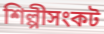
শিল্পীসংকট